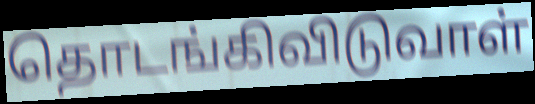
தொடங்கிவிடுவாள்